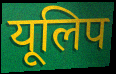
यूलिप